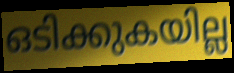
ഒടിക്കുകയില്ല